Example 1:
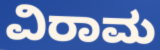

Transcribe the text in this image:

ವಿರಾಮ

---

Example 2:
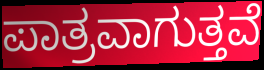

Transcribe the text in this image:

ಪಾತ್ರವಾಗುತ್ತವೆ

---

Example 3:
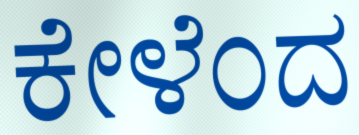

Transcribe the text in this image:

ಕೇಳೆಂದ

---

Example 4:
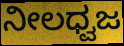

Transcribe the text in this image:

ನೀಲಧ್ವಜ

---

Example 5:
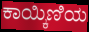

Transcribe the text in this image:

ಕಾಯ್ಕಿಣಿಯ